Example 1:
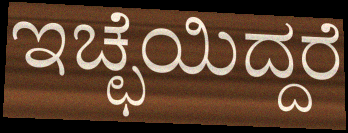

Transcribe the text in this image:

ಇಚ್ಛೆಯಿದ್ದರೆ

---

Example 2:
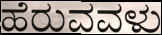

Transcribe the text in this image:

ಹೆರುವವಳು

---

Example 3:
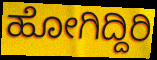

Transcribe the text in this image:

ಹೋಗಿದ್ದಿರಿ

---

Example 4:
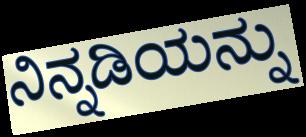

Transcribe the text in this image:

ನಿನ್ನಡಿಯನ್ನು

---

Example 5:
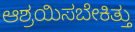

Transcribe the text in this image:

ಆಶ್ರಯಿಸಬೇಕಿತ್ತು